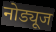
नोड्यूज